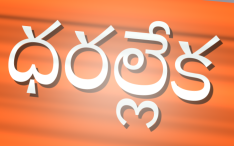
ధరల్లేక